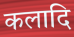
कलादि